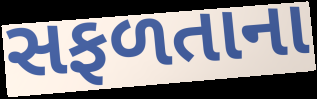
સફળતાના